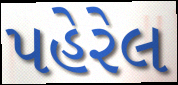
પહેરેલ